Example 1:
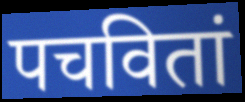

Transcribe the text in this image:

पचवितां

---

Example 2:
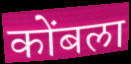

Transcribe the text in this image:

कोंबला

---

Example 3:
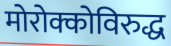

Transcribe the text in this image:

मोरोक्कोविरुद्ध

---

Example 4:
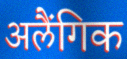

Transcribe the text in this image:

अलैंगिक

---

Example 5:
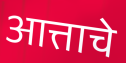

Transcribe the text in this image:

आत्ताचे